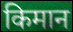
किमान